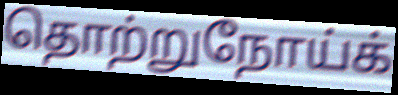
தொற்றுநோய்க்